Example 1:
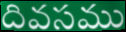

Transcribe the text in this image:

దివసము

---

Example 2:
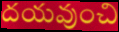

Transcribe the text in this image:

దయవుంచి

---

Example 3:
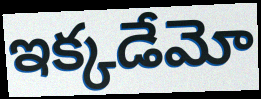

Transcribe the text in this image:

ఇక్కడేమో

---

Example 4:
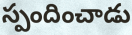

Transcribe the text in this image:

స్పందించాడు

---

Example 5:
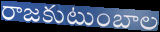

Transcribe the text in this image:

రాజకుటుంబాల